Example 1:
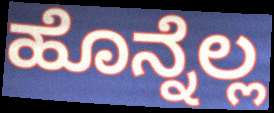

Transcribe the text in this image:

ಹೊನ್ನೆಲ್ಲ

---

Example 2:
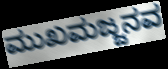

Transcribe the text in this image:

ಮುಖಮಜ್ಜನವ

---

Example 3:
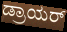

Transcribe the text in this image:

ಡ್ರಾಯರ್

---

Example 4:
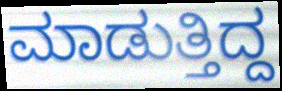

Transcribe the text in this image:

ಮಾಡುತ್ತಿದ್ದ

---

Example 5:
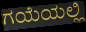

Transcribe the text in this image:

ಗಯೆಯಲ್ಲಿ